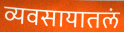
व्यवसायातलं